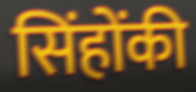
सिंहोंकी